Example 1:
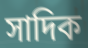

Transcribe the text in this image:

সাদিক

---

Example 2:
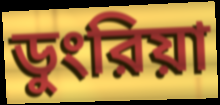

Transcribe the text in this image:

ডুংরিয়া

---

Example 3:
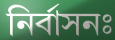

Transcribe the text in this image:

নির্বাসনঃ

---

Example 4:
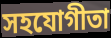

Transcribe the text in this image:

সহযোগীতা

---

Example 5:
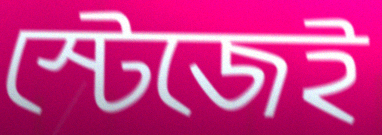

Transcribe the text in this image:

স্টেজেই